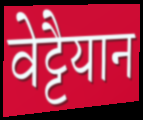
वेट्टैयान